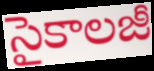
సైకాలజీ